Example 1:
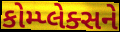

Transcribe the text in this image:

કોમ્પ્લેક્સને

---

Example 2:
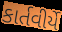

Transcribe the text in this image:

કાર્તવીર્યે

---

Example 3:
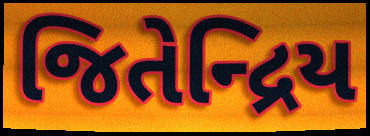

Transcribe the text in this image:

જિતેન્દ્રિય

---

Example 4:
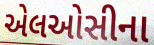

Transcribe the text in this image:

એલઓસીના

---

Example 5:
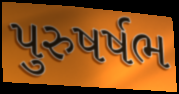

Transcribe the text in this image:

પુરુષર્ષભ